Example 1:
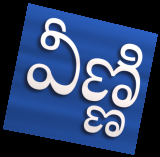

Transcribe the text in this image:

వీణ్ణి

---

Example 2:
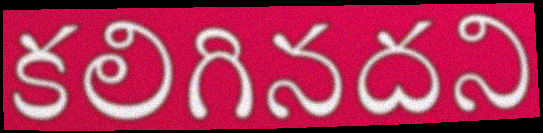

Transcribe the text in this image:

కలిగినదని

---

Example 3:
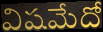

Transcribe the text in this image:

విషమేదో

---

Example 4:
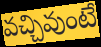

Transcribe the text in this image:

వచ్చివుంటే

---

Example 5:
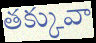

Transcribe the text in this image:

తక్కువా